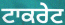
ਟਾਕਰੇਟ